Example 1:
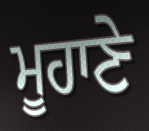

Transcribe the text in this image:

ਮੂਹਾਣੇ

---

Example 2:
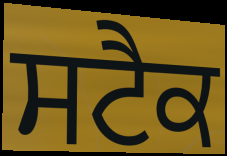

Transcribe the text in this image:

ਸਟੈਕ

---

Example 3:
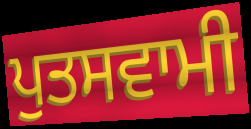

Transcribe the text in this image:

ਪੁਤਸਵਾਮੀ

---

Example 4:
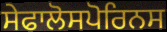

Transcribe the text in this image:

ਸੇਫਾਲੋਸਪੋਰਿਨਸ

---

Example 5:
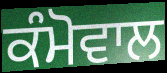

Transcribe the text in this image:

ਕੰਮੋਵਾਲ